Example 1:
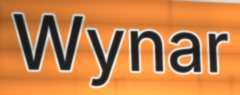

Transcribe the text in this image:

Wynar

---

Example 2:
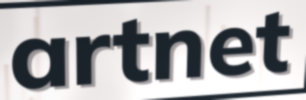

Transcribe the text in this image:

artnet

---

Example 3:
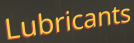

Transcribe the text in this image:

Lubricants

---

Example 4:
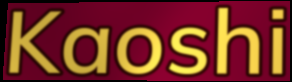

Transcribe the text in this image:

Kaoshi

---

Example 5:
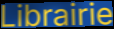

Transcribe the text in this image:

Librairie